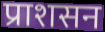
प्राशसन